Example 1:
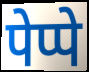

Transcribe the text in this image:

पेप्पे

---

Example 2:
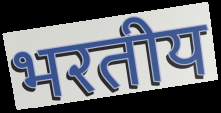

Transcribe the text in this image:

भरतीय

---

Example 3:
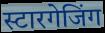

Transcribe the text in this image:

स्टारगेजिंग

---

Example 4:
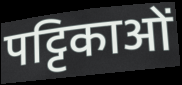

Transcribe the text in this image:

पट्टिकाओं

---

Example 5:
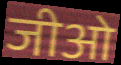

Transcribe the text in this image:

जीओ